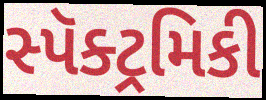
સ્પૅક્ટ્રમિકી